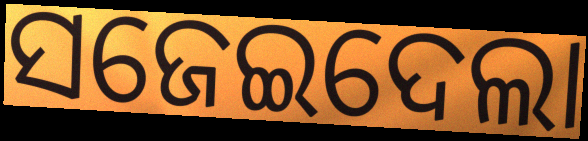
ସଜେଇଦେଲା